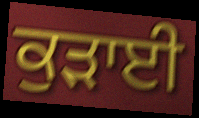
ਕੁੜਾਈ